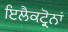
ਇਲੈਕਟ੍ਰੋਨਾਂ